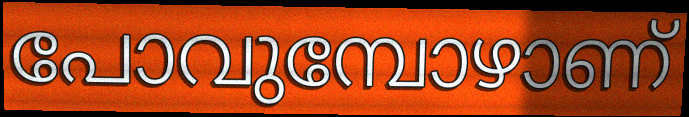
പോവുമ്പോഴാണ്